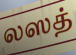
லஸத்